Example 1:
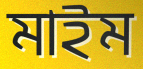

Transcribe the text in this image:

মাইম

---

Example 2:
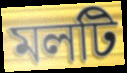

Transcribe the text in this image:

মলটি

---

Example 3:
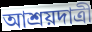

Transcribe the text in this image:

আশ্রয়দাত্রী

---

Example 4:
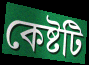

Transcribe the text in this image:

কেষ্টটি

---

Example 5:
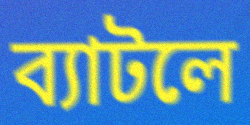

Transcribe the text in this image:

ব্যাটলে